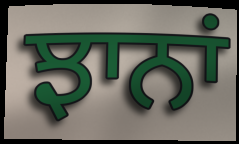
ਝਾਨਾਂ